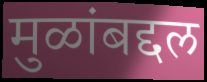
मुळांबद्दल